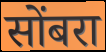
सोंबरा